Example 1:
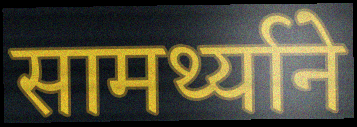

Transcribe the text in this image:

सामर्थ्याने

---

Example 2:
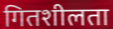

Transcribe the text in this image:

गितशीलता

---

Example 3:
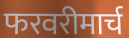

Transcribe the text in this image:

फरवरीमार्च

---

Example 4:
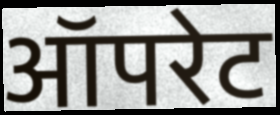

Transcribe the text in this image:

ऑपरेट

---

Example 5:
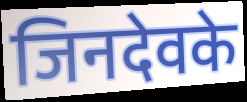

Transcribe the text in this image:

जिनदेवके